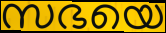
സഭയെ